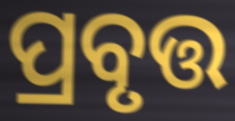
ପ୍ରବୃତ୍ତ